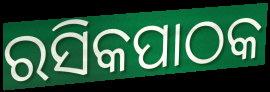
ରସିକପାଠକ